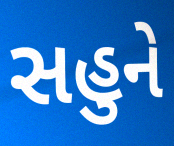
સહુને